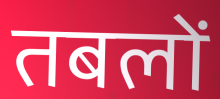
तबलों